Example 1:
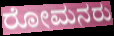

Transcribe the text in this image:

ರೋಮನರು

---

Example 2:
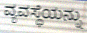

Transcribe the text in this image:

ವ್ಯವಸ್ಥೆಯನ್ನು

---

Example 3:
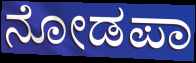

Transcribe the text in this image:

ನೋಡಪಾ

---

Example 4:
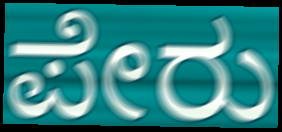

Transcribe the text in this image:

ಪೇರು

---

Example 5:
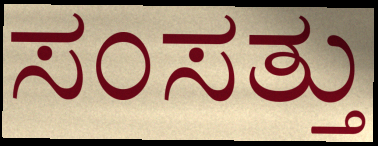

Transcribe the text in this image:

ಸಂಸತ್ತು